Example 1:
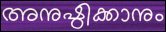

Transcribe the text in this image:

അനുഷ്ഠിക്കാനും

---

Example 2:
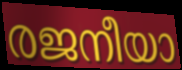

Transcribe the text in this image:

രജനീയാ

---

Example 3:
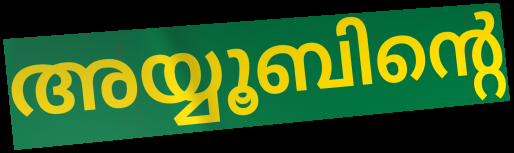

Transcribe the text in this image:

അയ്യൂബിന്റെ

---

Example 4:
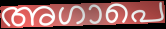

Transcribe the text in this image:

അഗാപെ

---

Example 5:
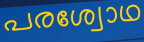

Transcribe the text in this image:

പരശ്വോഥ